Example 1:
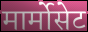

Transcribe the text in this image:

मार्मोसेट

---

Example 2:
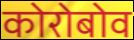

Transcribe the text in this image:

कोरोबोव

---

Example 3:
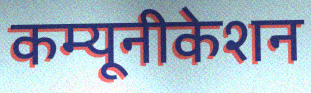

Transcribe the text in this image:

कम्यूनीकेशन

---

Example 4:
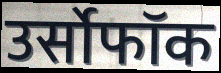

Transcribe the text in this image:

उर्सोफॉक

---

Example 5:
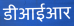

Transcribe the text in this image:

डीआईआर